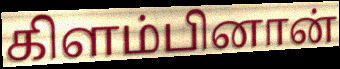
கிளம்பினான்